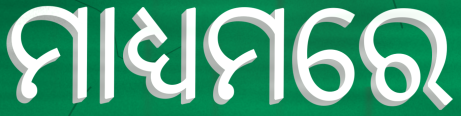
ମାଧ୍ୟମରେ